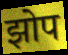
झोप